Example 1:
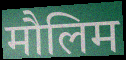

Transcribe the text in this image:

मौलिम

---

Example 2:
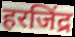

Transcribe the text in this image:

हरजिंद्र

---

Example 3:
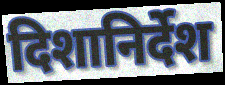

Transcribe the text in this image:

दिशानिर्देश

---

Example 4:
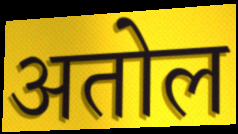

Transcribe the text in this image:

अतोल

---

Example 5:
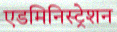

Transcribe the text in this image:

एडमिनिस्‍ट्रेशन